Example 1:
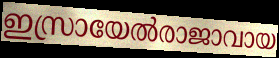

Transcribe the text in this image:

ഇസ്രായേൽരാജാവായ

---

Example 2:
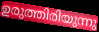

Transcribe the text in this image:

ഉരുത്തിരിയുന്നു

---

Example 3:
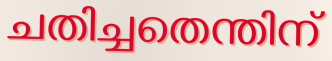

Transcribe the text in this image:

ചതിച്ചതെന്തിന്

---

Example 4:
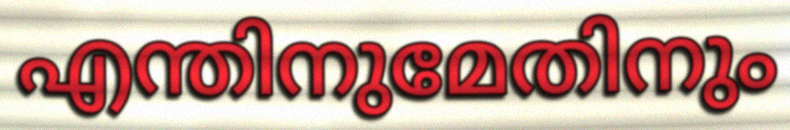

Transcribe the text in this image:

എന്തിനുമേതിനും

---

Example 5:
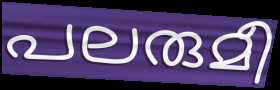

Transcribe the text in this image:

പലരുമീ